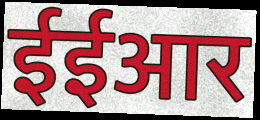
ईईआर